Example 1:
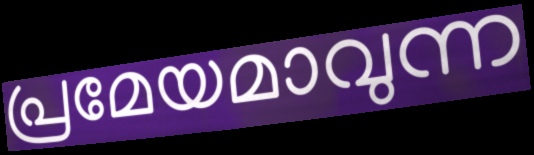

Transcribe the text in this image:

പ്രമേയമാവുന്ന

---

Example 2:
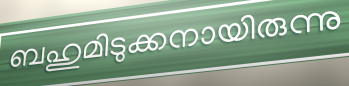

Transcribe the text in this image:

ബഹുമിടുക്കനായിരുന്നു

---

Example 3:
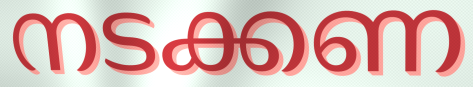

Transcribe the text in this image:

നടക്കണ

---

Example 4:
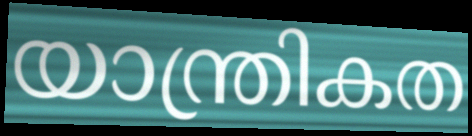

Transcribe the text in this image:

യാന്ത്രികത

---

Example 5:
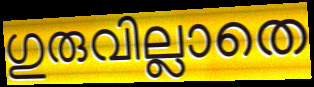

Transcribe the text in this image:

ഗുരുവില്ലാതെ